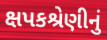
ક્ષપકશ્રેણીનું